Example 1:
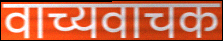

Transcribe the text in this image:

वाच्यवाचक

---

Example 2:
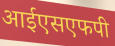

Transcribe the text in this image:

आईएसएफपी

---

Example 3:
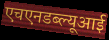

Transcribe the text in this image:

एचएनडब्ल्यूआई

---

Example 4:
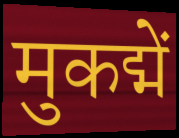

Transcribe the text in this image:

मुकद्में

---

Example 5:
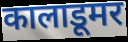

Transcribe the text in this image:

कालाडूमर